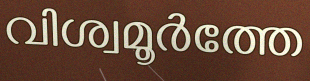
വിശ്വമൂർത്തേ